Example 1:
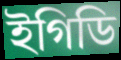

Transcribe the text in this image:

ইগিডি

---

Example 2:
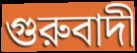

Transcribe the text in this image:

গুরুবাদী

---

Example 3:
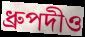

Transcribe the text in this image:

ধ্রুপদীও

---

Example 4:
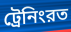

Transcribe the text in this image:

ট্রেনিংরত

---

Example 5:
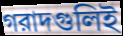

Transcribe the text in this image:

গরাদগুলিই